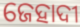
ଜେହାଦୀ